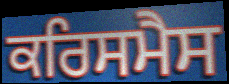
ਕਰਿਸਮੈਸ